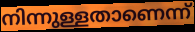
നിന്നുള്ളതാണെന്ന്